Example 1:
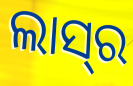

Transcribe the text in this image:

ଲାସ୍‌ର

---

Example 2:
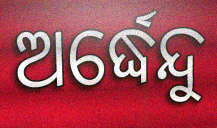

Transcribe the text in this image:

ଅର୍ଦ୍ଧେନ୍ଦୁ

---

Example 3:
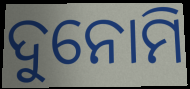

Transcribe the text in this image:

ଦୁନୋମି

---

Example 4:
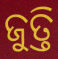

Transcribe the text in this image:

ଜୁତ୍ତି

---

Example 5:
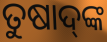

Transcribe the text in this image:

ତୁଷାଦ୍‌ଙ୍କ